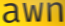
awn